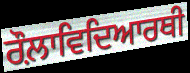
ਰੌਲ਼ਾਵਿਦਿਆਰਥੀ